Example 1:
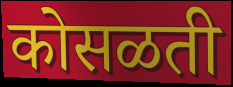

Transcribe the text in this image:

कोसळती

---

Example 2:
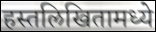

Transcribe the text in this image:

हस्तलिखितामध्ये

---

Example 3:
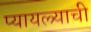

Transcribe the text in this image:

प्यायल्याची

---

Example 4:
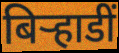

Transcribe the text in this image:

बिर्‍हाडीं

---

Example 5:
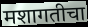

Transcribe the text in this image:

मशागतीचा